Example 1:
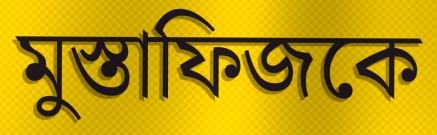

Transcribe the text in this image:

মুস্তাফিজকে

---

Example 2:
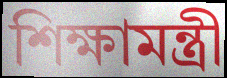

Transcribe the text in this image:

শিক্ষামন্ত্রী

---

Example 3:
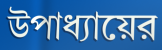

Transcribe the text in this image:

উপাধ্যায়ের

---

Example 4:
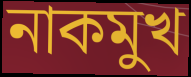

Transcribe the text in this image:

নাকমুখ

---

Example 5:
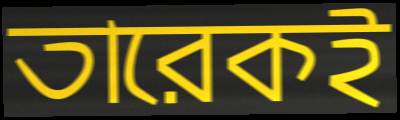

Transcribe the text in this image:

তারেকই